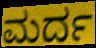
ಮರ್ದ